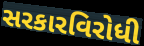
સરકારવિરોધી